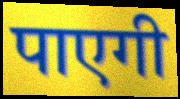
पाएगी